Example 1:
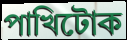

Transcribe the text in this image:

পাখিটোক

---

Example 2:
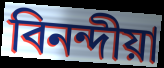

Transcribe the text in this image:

বিনন্দীয়া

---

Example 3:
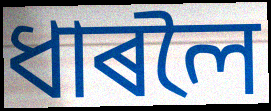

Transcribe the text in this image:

ধাৰলৈ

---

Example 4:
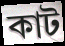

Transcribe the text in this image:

কাট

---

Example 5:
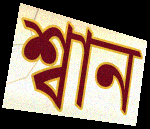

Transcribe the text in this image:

শ্বান